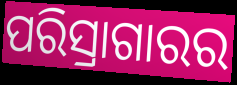
ପରିସ୍ରାଗାରର